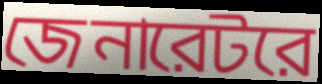
জেনারেটরে